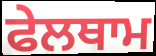
ਫੇਲਥਾਮ